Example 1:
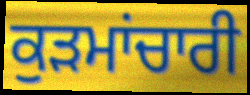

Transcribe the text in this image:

ਕੁੜਮਾਂਚਾਰੀ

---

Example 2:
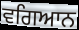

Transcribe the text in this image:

ਵਗਿਆਨ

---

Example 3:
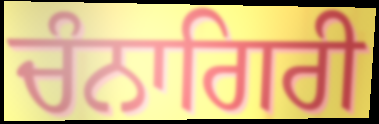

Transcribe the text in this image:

ਚੰਨਾਗਿਰੀ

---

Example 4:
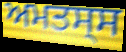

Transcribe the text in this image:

ਅਮਤਸ੍ਸ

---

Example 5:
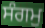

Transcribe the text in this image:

ਸੰਗਮੁ